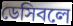
ডেসিবলে